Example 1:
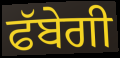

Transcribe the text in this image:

ਫੱਬੇਗੀ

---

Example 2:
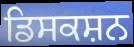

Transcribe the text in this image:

ਡਿਸਕਸ਼ਨ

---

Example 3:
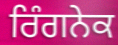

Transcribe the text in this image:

ਰਿੰਗਨੇਕ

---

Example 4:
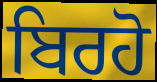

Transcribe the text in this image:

ਬਿਰਹੋ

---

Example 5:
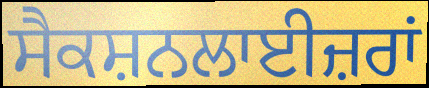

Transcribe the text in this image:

ਸੈਕਸ਼ਨਲਾਈਜ਼ਰਾਂ